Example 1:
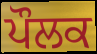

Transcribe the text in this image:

ਪੌਲਕ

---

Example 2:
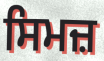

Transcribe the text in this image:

ਸਿਮਜ਼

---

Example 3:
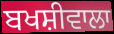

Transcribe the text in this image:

ਬਖਸ਼ੀਵਾਲਾ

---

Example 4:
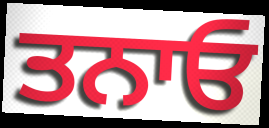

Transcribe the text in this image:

ਤਨਾਓ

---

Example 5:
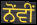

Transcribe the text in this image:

ਨੋਂਵੀਂ